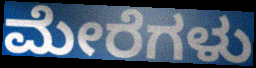
ಮೇರೆಗಳು